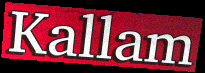
Kallam